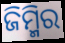
ଜିମ୍ମିର